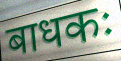
बाधकः